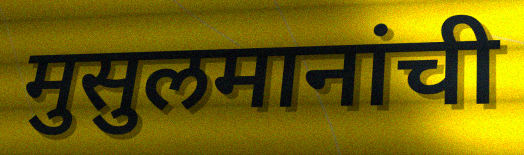
मुसुलमानांची